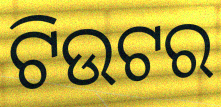
ଟିଉଟର